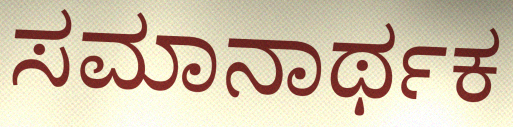
ಸಮಾನಾರ್ಥಕ